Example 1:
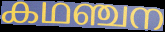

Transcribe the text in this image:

കഥഞ്ചന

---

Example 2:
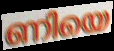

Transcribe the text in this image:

ണിയെ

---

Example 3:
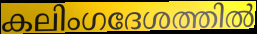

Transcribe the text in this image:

കലിംഗദേശത്തിൽ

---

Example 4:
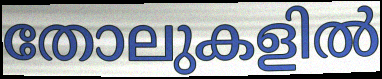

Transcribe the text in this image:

തോലുകളിൽ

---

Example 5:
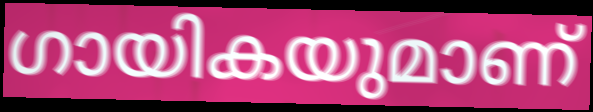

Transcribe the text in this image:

ഗായികയുമാണ്